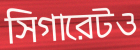
সিগারেটও